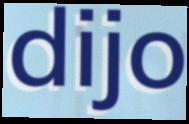
dijo